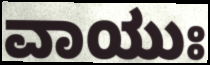
ವಾಯುಃ